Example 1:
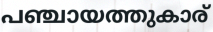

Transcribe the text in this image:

പഞ്ചായത്തുകാര്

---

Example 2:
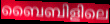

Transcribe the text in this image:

ബൈബിളിലെ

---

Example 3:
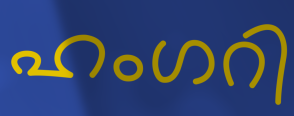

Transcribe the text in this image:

ഹംഗറി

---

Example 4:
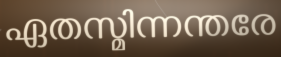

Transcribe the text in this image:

ഏതസ്മിന്നന്തരേ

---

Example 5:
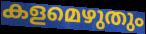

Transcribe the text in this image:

കളമെഴുതും